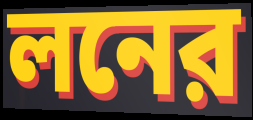
লনের